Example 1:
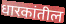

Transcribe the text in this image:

धारकांतील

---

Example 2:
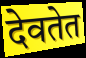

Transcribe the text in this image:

देवतेत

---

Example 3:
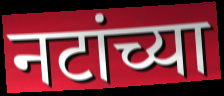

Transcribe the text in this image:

नटांच्या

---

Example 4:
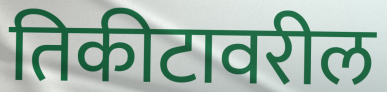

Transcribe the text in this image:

तिकीटावरील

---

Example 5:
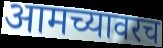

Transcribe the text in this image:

आमच्यावरच